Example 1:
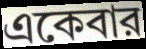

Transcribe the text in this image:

একেবার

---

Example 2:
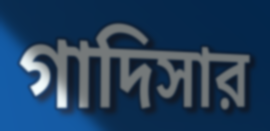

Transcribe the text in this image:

গাদিসার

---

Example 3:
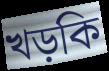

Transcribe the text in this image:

খড়কি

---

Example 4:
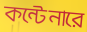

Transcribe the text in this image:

কন্টেনারে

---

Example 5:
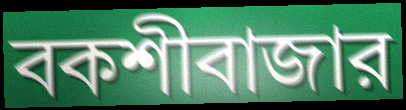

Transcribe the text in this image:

বকশীবাজার